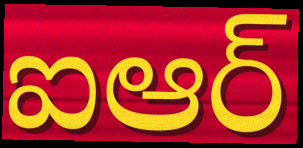
ఐఆర్